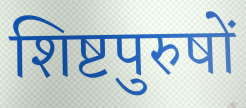
शिष्टपुरुषों